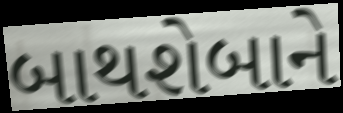
બાથશેબાને